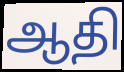
ஆதி